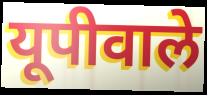
यूपीवाले